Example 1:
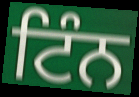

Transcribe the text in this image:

ਟਿੰਨ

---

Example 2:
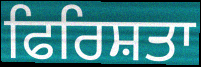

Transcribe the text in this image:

ਫਿਰਿਸ਼ਤਾ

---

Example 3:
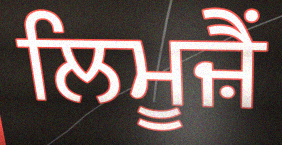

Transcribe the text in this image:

ਲਿਮੂਜ਼ੈਂ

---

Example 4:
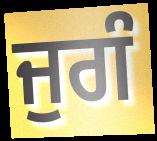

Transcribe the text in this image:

ਜੁਗੰ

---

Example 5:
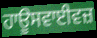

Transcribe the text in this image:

ਹਾਊਸਵਾਈਵਜ਼